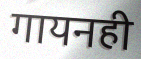
गायनही